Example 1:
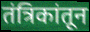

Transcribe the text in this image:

तंत्रिकांतून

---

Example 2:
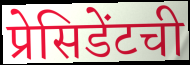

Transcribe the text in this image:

प्रेसिडेंटची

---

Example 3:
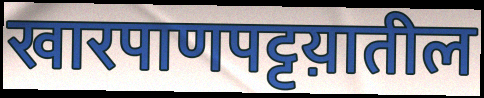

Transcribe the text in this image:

खारपाणपट्टय़ातील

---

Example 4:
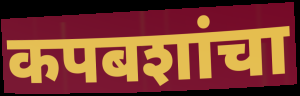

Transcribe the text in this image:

कपबशांचा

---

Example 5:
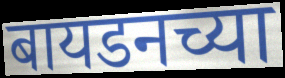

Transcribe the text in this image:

बायडनच्या